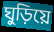
ঘুড়িয়ে